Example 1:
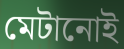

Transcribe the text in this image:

মেটানোই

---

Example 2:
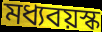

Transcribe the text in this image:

মধ্যবয়স্ক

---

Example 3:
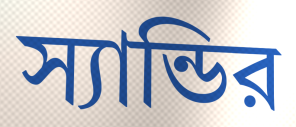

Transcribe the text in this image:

স্যান্ডির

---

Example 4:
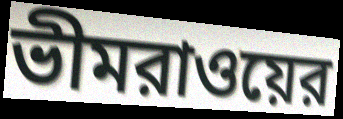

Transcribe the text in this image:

ভীমরাওয়ের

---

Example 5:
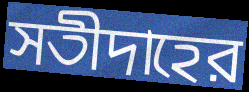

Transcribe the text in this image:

সতীদাহের